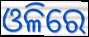
ଓଳିରେ